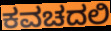
ಕವಚದಲಿ